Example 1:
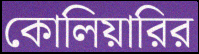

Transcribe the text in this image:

কোলিয়ারির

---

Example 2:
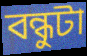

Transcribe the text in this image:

বন্ধুটা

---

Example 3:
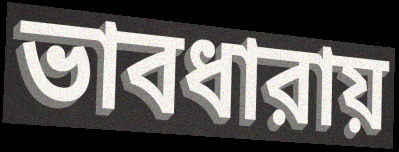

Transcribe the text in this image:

ভাবধারায়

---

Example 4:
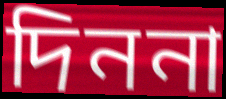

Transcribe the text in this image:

দিননা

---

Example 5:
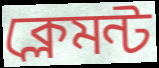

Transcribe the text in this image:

ক্লেমন্ট